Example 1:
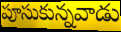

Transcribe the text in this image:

పూసుకున్నవాడు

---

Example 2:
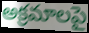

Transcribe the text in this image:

అక్రమాలపై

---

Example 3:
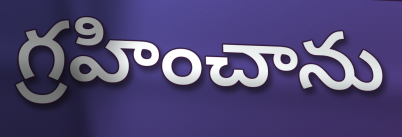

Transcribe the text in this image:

గ్రహించాను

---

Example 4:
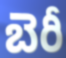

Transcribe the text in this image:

బెరీ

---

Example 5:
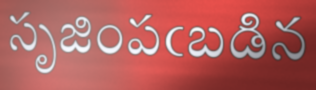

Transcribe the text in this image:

సృజింపఁబడిన